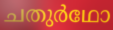
ചതുർഥോ